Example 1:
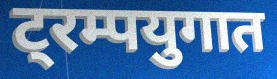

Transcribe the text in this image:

ट्रम्पयुगात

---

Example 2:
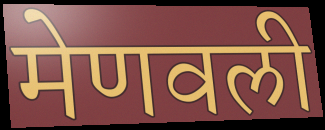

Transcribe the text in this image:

मेणवली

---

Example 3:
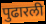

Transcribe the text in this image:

पुढारली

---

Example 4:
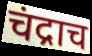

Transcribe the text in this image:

चंद्राच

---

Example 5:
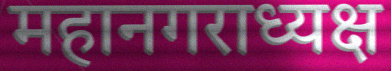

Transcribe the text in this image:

महानगराध्यक्ष